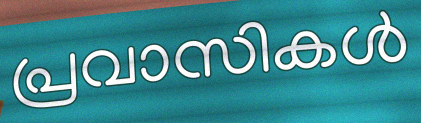
പ്രവാസികൾ